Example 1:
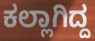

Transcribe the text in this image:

ಕಲ್ಲಾಗಿದ್ದ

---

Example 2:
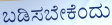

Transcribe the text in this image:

ಬಡಿಸಬೇಕೆಂದು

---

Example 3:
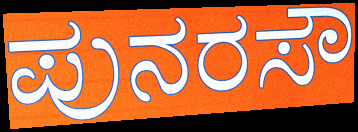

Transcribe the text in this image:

ಪುನರಸೌ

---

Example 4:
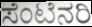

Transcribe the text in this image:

ಸೆಂಟೆನರಿ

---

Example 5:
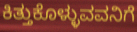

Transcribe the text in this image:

ಕಿತ್ತುಕೊಳ್ಳುವವನಿಗೆ